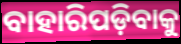
ବାହାରିପଡ଼ିବାକୁ